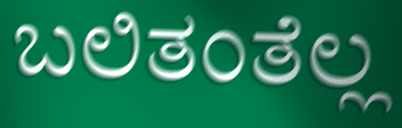
ಬಲಿತಂತೆಲ್ಲ